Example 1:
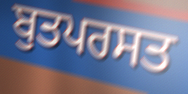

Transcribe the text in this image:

ਬੁਤਪਰਸਤ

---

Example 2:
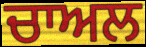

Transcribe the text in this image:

ਚਾਅਲ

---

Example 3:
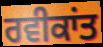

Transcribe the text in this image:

ਰਵੀਕਾਂਤ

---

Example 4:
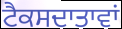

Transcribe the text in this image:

ਟੈਕਸਦਾਤਾਵਾਂ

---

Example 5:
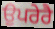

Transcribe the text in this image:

ਉਪਰੇਰੈ